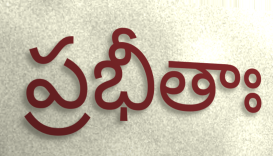
ప్రభీతాః